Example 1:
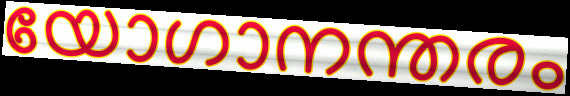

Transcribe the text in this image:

യോഗാനന്തരം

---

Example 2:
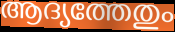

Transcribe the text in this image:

ആദ്യത്തേതും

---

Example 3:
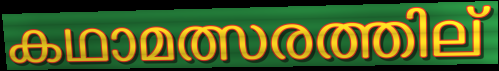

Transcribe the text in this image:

കഥാമത്സരത്തില്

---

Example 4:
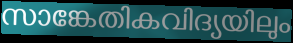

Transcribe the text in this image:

സാങ്കേതികവിദ്യയിലും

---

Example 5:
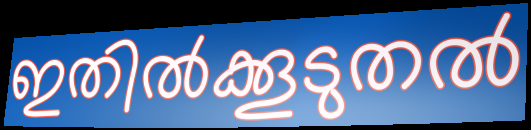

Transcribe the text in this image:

ഇതിൽക്കൂടുതൽ